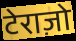
टेराज़ो